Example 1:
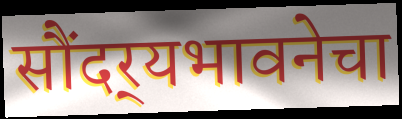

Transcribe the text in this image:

सौंदर्यभावनेचा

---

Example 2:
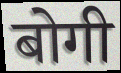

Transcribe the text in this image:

बोगी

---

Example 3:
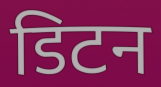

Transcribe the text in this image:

डिटन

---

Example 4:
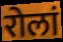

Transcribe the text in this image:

रोलां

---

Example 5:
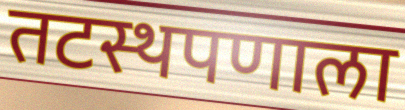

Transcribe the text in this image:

तटस्थपणाला